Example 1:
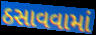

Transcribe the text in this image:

ઠસાવવામાં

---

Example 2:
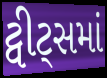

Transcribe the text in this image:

ટ્વીટ્સમાં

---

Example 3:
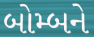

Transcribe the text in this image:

બોમ્બને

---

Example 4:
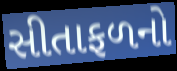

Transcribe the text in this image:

સીતાફળનો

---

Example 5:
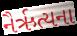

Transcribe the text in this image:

નૈર્ઋત્યના